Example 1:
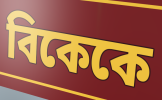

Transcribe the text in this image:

বিকেকে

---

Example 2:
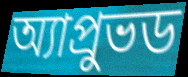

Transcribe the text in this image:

অ্যাপ্রুভড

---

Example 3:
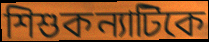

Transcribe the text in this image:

শিশুকন্যাটিকে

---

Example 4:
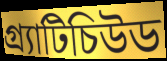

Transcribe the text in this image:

গ্র্যাটিচিউড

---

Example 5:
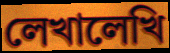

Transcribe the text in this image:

লেখালেখি